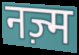
नज़्म